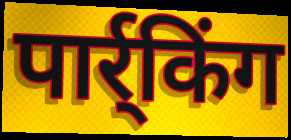
पार्र्किंग